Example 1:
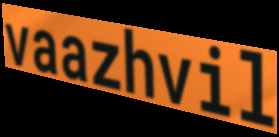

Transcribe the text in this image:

vaazhvil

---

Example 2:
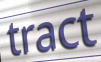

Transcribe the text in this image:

tract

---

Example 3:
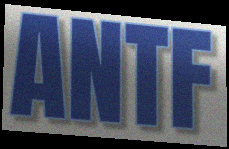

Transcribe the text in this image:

ANTF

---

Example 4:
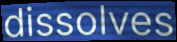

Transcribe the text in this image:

dissolves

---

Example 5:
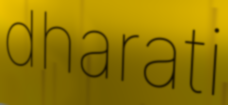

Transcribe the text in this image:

dharati